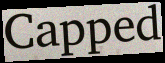
Capped